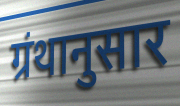
ग्रंथानुसार